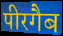
पीरगैब